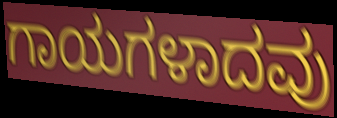
ಗಾಯಗಳಾದವು